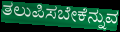
ತಲುಪಿಸಬೇಕೆನ್ನುವ